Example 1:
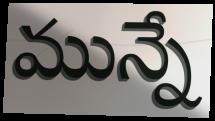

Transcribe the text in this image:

మున్నే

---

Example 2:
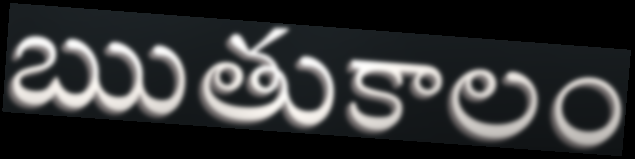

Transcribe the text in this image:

ఋతుకాలం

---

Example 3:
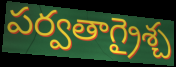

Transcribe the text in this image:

పర్వతాగ్రైశ్చ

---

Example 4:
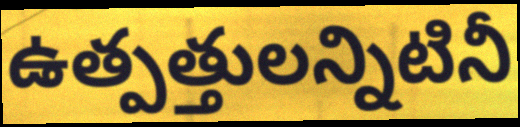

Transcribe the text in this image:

ఉత్పత్తులన్నిటినీ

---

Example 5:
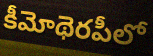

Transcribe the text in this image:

కీమోథెరపీలో